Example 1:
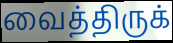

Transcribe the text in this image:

வைத்திருக்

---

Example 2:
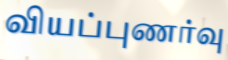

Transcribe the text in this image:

வியப்புணர்வு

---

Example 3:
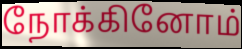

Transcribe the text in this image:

நோக்கினோம்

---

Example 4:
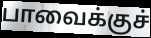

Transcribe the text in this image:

பாவைக்குச்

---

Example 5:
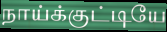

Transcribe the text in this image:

நாய்க்குட்டியே